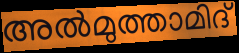
അൽമുത്താമിദ്